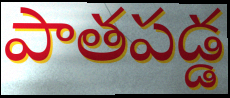
పాతపడ్డ